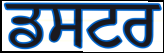
ਡਸਟਰ